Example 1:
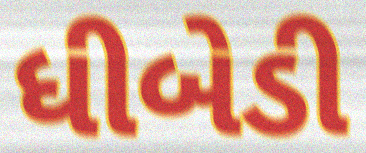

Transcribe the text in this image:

ધીબેડી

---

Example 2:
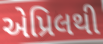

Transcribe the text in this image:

એપ્રિલથી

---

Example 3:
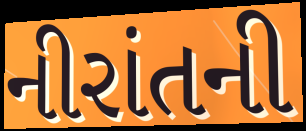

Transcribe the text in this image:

નીરાંતની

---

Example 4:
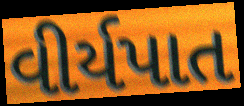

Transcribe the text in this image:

વીર્યપાત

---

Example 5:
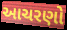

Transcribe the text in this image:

આચરણો